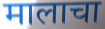
मालाचा